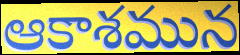
ఆకాశమున